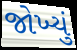
જોખ્યું